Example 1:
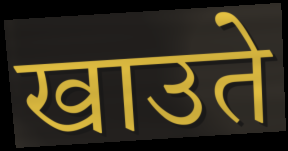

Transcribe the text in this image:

खाउते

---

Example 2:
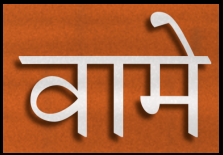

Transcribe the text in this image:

वामे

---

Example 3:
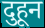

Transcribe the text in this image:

दुहून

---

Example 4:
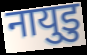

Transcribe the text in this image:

नायुडु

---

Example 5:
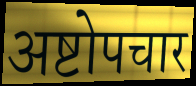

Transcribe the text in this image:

अष्टोपचार